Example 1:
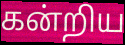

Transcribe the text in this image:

கன்றிய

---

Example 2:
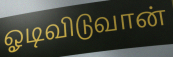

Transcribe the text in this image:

ஓடிவிடுவான்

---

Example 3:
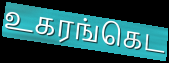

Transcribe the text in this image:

உகரங்கெட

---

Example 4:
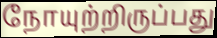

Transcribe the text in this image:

நோயுற்றிருப்பது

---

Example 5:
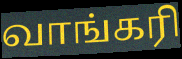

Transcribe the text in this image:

வாங்கரி